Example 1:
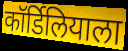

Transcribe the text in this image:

कॉर्डिलियाला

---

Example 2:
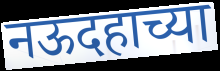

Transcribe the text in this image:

नऊदहाच्या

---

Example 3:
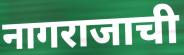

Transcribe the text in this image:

नागराजाची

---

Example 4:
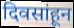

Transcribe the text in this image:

दिवसांहून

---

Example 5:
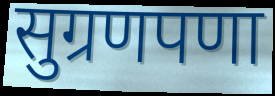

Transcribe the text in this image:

सुग्रणपणा